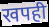
खपही